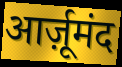
आर्ज़ूमंद